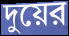
দুয়ের